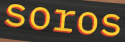
soros